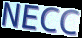
NECC